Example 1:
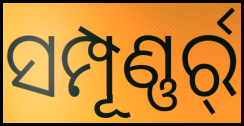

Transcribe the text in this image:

ସମ୍ପୂଣ୍ଣର୍ର୍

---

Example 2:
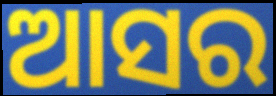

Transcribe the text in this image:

ଆସର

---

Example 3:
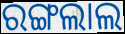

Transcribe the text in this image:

ରଙ୍ଗଲାଲ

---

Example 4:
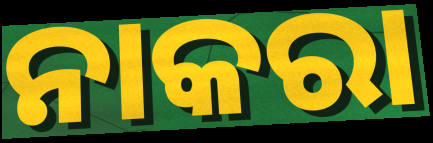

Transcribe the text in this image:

ନାକରା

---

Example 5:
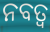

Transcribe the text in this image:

ନବତ୍ଵ